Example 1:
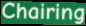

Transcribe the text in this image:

Chairing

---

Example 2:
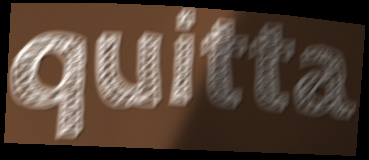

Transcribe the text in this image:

quitta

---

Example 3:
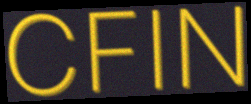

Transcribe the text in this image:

CFIN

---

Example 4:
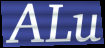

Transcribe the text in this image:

ALu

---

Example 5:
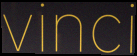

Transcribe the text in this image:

vinci